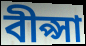
বীপ্সা